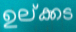
ഉല്ക്കട